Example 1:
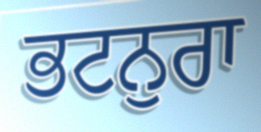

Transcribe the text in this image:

ਭਟਨੁਰਾ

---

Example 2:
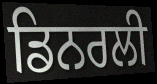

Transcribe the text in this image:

ਡਿਨਰਲੀ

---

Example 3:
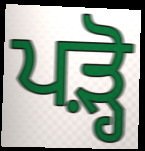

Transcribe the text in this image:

ਪ਼ੜ੍ਹੋ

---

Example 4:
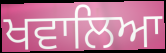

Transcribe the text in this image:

ਖਵਾਲਿਆ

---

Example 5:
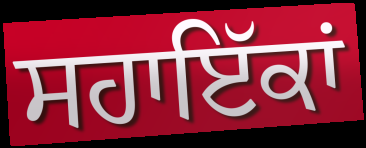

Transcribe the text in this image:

ਸਹਾਇੱਕਾਂ